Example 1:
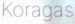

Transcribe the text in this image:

Koragas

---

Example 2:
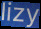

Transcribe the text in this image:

lizy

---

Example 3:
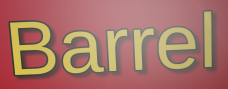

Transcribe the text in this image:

Barrel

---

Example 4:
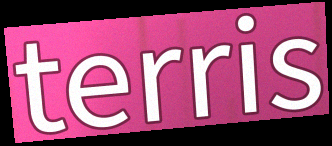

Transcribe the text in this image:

terris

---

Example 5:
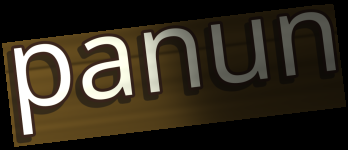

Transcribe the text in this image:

panun